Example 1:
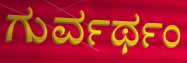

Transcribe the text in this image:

ಗುರ್ವರ್ಥಂ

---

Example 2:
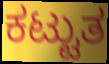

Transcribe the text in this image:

ಕಟ್ಟುತ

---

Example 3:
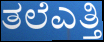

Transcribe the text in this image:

ತಲೆಎತ್ತಿ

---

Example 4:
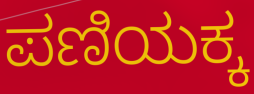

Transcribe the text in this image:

ಪಣಿಯಕ್ಕ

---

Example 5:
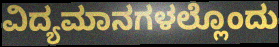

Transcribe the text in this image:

ವಿದ್ಯಮಾನಗಳಲ್ಲೊಂದು